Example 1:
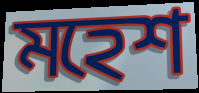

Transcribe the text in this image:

মহেশ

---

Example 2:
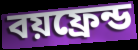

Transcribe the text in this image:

বয়ফ্রেন্ড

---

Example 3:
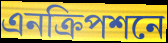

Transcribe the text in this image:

এনক্রিপশনে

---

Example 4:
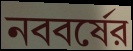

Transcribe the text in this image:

নববর্ষের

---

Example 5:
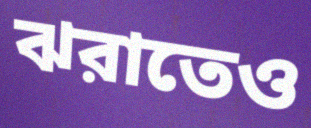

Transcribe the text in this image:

ঝরাতেও